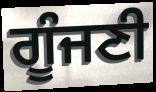
ਗੂੰਜਣੀ